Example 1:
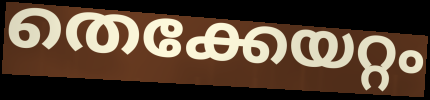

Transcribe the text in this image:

തെക്കേയറ്റം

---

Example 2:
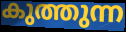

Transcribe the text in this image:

കുത്തുന്ന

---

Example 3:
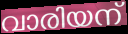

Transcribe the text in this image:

വാരിയന്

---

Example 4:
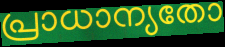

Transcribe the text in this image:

പ്രാധാന്യതോ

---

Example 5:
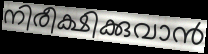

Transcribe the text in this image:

നിരീക്ഷിക്കുവാൻ